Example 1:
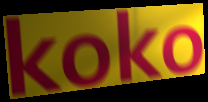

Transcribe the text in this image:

koko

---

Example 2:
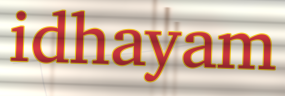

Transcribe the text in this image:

idhayam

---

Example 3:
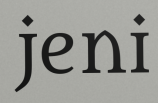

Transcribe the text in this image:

jeni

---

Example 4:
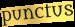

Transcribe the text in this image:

punctus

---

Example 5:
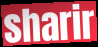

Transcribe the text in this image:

sharir